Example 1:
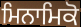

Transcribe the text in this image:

ਮਿਨਾਮਿਕੋ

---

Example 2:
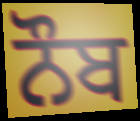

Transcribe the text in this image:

ਨੌਬ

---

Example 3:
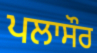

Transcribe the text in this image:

ਪਲਾਸੌਰ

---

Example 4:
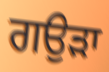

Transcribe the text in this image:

ਗਉੜਾ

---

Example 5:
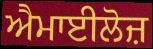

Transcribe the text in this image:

ਐਮਾਈਲੋਜ਼